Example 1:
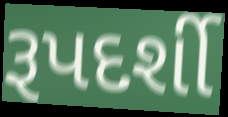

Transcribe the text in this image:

રૂપદર્શી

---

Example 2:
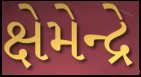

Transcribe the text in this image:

ક્ષેમેન્દ્રે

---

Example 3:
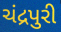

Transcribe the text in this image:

ચંદ્રપુરી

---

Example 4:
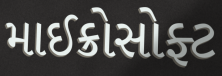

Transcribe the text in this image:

માઈક્રોસોફ્ટ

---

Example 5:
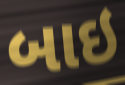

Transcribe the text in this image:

બાઇ